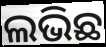
ଲଭିଛ